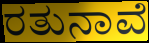
ರತುನಾವೆ